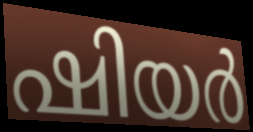
ഷിയർ